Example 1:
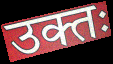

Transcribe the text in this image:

उक्तः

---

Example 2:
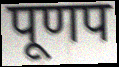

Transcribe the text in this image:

पूणप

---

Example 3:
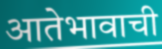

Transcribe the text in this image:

आतेभावाची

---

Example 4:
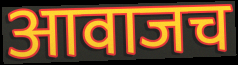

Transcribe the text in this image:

आवाजच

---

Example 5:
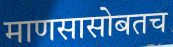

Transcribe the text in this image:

माणसासोबतच